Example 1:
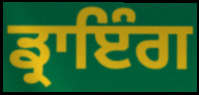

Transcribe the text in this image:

ਡ੍ਰਾਇੰਗ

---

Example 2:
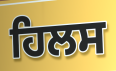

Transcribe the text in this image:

ਹਿਲਸ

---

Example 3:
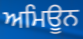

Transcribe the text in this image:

ਅਮਿਊਨ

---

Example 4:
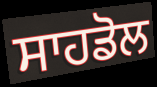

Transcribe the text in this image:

ਸਾਹਡੋਲ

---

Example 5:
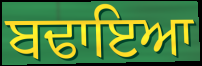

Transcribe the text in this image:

ਬਢਾਇਆ